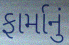
ફાર્માનું